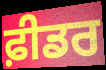
ਫ਼ੀਡਰ